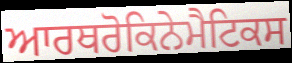
ਆਰਥਰੋਕਿਨੇਮੈਟਿਕਸ